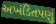
અખંડિતપણું